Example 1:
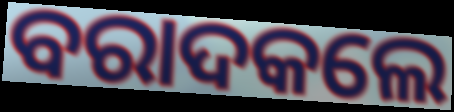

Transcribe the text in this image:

ବରାଦକଲେ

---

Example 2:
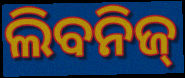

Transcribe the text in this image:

ଲିବନିଜ୍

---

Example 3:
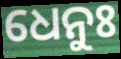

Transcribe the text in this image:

ଧେନୁଃ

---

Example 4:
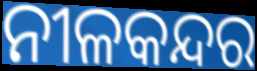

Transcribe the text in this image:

ନୀଳକନ୍ଦର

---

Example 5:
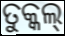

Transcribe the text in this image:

ତୁକ୍କଲ୍